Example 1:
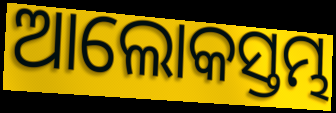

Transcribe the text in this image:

ଆଲୋକସ୍ତମ୍ଭ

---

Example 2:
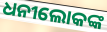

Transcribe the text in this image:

ଧନୀଲୋକଙ୍କ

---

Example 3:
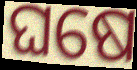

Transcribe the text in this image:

ଘଷେ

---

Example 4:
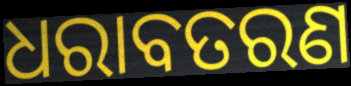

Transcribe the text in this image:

ଧରାବତରଣ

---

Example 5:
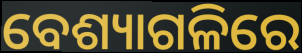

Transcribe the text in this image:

ବେଶ୍ୟାଗଳିରେ